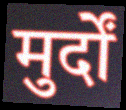
मुर्दों